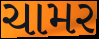
ચામર